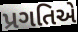
પ્રગતિએ